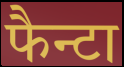
फैन्टा